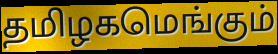
தமிழகமெங்கும்